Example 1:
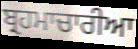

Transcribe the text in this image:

ਬ੍ਰਹਮਾਚਾਰੀਆ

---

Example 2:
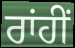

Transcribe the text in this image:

ਰਾਂਹੀਂ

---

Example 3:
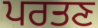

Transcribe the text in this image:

ਪਰਤਣ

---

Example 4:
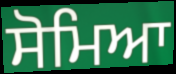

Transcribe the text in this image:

ਸੋਮਿਆ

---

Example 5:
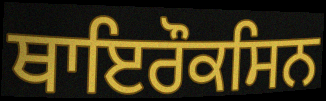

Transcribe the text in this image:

ਥਾਇਰੌਕਸਿਨ